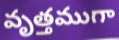
వృత్తముగా